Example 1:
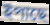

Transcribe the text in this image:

ইপাছে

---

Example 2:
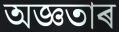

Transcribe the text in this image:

অজ্ঞতাৰ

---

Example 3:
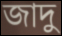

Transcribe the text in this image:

জাদু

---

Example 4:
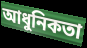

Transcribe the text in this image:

আধুনিকতা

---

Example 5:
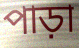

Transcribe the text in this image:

পাড়া